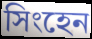
সিংহেন